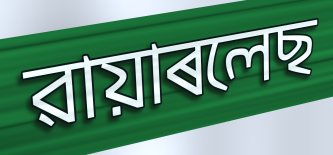
ৱায়াৰলেছ